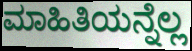
ಮಾಹಿತಿಯನ್ನೆಲ್ಲ